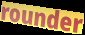
rounder